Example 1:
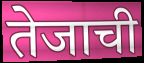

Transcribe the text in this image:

तेजाची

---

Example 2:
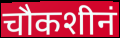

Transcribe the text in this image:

चौकशीनं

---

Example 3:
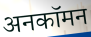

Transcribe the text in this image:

अनकॉमन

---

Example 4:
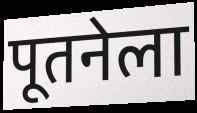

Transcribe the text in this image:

पूतनेला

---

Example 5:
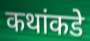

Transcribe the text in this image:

कथांकडे